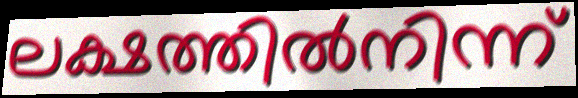
ലക്ഷത്തിൽനിന്ന്